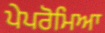
ਪੇਪਰੋਮਿਆ